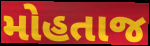
મોહતાજ